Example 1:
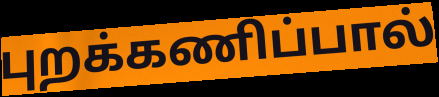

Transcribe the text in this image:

புறக்கணிப்பால்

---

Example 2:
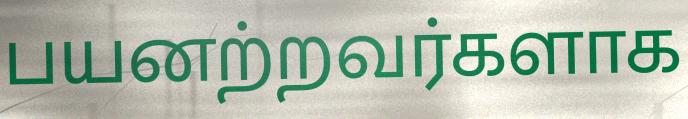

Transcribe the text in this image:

பயனற்றவர்களாக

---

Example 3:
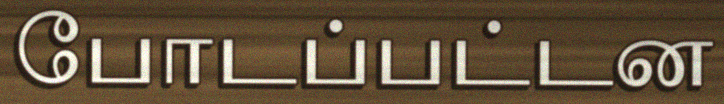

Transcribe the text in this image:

போடப்பட்டன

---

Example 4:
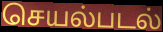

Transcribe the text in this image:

செயல்படல்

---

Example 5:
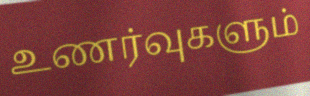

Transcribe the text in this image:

உணர்வுகளும்